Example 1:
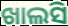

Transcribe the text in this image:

ଖାଲସି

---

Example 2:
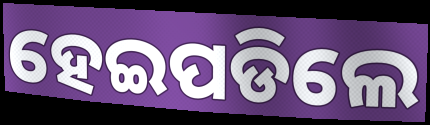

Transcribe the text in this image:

ହେଇପଡିଲେ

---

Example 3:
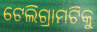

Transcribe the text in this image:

ଟେଲିଗ୍ରାମଟିକୁ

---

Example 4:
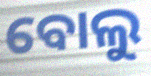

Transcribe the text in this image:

ବୋଲୁ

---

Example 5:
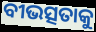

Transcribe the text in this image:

ବୀଭତ୍ସତାକୁ